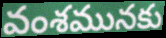
వంశమునకు